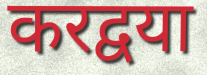
करद्वया